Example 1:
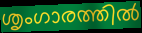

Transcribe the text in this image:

ശൃംഗാരത്തിൽ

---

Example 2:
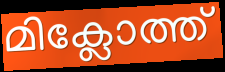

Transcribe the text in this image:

മിക്ലോത്ത്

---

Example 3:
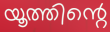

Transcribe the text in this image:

യൂത്തിന്റെ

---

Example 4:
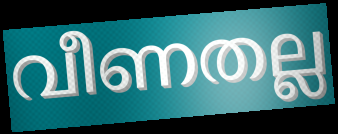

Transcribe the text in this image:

വീണതല്ല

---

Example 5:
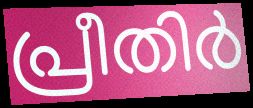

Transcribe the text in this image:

പ്രീതിർ